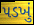
પડખું